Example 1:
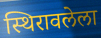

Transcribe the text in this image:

स्थिरावलेला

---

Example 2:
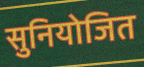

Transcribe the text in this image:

सुनियोजित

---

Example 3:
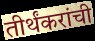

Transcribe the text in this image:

तीर्थंकरांची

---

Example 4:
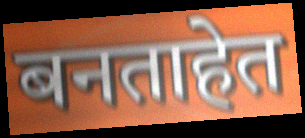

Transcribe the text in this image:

बनताहेत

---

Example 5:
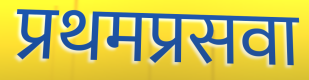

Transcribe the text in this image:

प्रथमप्रसवा